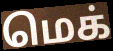
மெக்